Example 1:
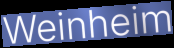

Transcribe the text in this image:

Weinheim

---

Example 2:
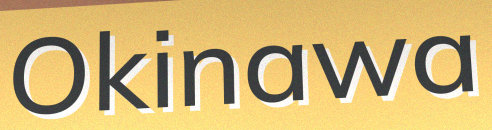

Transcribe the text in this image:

Okinawa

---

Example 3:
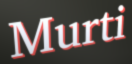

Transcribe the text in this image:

Murti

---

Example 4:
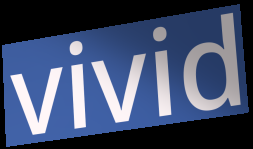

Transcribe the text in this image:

vivid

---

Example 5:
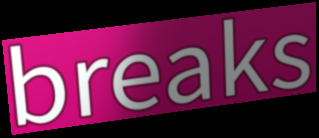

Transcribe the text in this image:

breaks